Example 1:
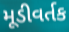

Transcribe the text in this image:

મૂડીવર્તક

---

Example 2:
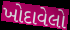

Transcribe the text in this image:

ખોદાવેલો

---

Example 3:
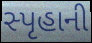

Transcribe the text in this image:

સ્પૃહાની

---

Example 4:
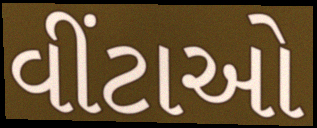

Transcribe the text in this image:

વીંટાઓ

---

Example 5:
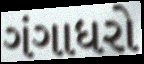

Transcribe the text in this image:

ગંગાધરો